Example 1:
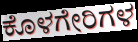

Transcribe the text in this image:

ಕೊಳಗೇರಿಗಳ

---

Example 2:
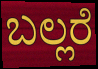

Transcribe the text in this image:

ಬಲ್ಲರೆ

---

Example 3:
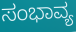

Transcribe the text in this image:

ಸಂಭಾವ್ಯ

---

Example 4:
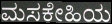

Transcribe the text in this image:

ಮಸಕೇಹಿಯ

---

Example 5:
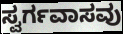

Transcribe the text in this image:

ಸ್ವರ್ಗವಾಸವು